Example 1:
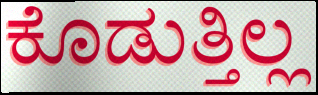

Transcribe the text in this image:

ಕೊಡುತ್ತಿಲ್ಲ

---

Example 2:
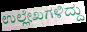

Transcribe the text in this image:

ಉಲ್ಲೇಖಗಳಿದ್ದು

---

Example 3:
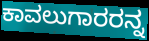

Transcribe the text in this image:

ಕಾವಲುಗಾರರನ್ನ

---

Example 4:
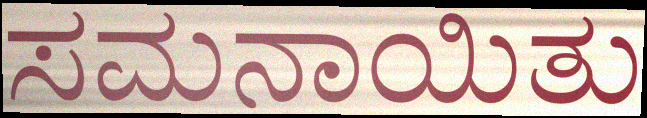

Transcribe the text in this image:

ಸಮನಾಯಿತು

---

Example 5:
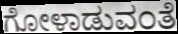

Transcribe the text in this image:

ಗೋಳಾಡುವಂತೆ